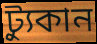
ট্যুকান